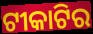
ଟୀକାଟିର